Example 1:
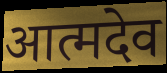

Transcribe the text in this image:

आत्मदेव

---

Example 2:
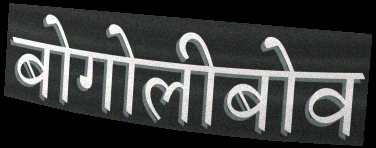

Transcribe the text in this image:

बोगोलीबोव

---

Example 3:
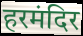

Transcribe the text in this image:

हरमंदिर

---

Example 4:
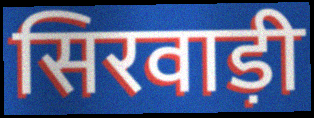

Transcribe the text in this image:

सिरवाड़ी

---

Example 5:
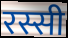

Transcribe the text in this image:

रस्सी